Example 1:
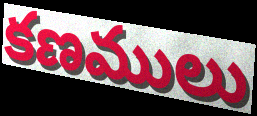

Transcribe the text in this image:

కణములు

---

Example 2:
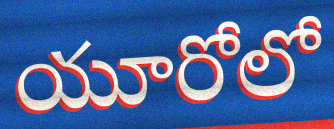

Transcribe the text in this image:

యూరోలో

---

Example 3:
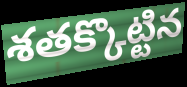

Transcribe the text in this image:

శతక్కొట్టిన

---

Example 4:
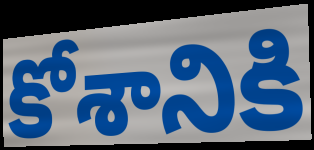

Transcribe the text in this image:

కోశానికి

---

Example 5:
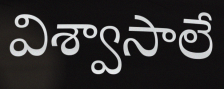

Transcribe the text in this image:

విశ్వాసాలే